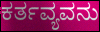
ಕರ್ತವ್ಯವನು